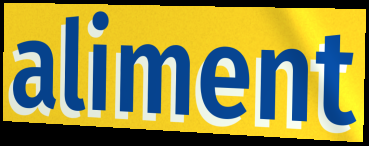
aliment